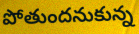
పోతుందనుకున్న